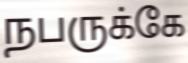
நபருக்கே